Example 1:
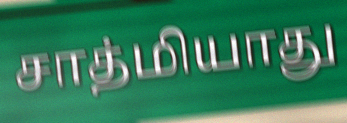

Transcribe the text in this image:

சாத்மியாது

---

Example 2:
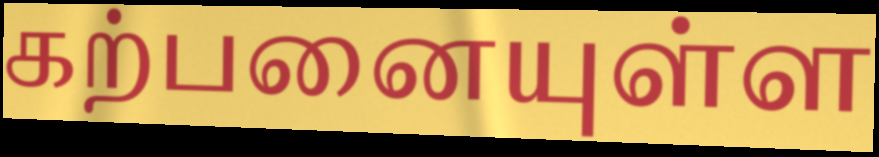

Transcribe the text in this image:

கற்பனையுள்ள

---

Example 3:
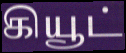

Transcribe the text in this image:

கியூட்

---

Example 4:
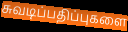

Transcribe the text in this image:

சுவடிப்பதிப்புகளை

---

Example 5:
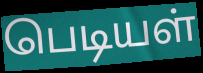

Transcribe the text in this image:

பெடியள்